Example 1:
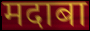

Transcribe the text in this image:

मदाबा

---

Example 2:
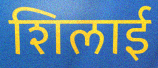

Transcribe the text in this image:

शिलाई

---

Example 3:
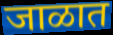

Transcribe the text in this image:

जाळात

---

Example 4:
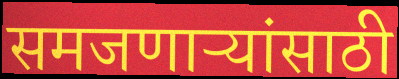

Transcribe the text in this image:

समजणाऱ्यांसाठी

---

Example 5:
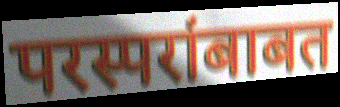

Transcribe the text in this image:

परस्परांबाबत